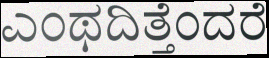
ಎಂಥದಿತ್ತೆಂದರೆ